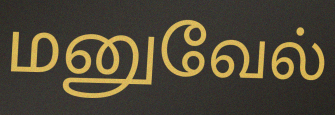
மனுவேல்